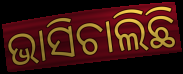
ଭାସିଚାଲିଛି